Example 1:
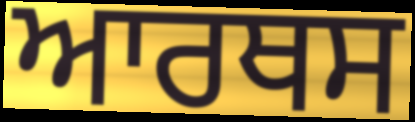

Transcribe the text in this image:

ਆਰਥਸ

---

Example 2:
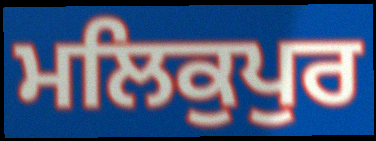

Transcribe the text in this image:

ਮਲਿਕੁਪੁਰ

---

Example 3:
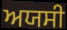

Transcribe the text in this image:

ਅਯਸੀ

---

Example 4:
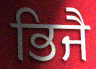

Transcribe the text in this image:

ਭਿਜੈ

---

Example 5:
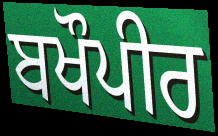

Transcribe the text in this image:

ਬਖੌਪੀਰ